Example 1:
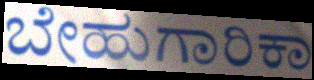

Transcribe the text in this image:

ಬೇಹುಗಾರಿಕಾ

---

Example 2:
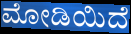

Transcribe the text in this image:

ಮೋಡಿಯಿದೆ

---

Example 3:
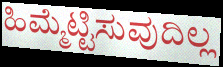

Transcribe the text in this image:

ಹಿಮ್ಮೆಟ್ಟಿಸುವುದಿಲ್ಲ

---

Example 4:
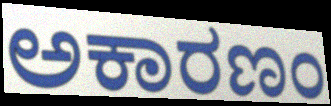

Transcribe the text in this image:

ಅಕಾರಣಂ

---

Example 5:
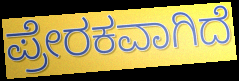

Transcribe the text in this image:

ಪ್ರೇರಕವಾಗಿದೆ